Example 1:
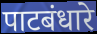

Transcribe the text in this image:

पाटबंधारे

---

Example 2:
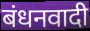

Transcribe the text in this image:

बंधनवादी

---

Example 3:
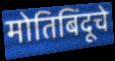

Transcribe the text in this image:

मोतिबिंदूचे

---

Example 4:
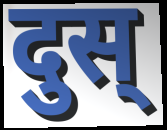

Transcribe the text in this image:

दुस्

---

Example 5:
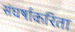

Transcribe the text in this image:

संघर्षाकरिता